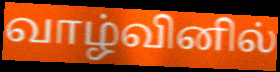
வாழ்வினில்